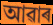
আৱাৰ